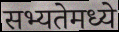
सभ्यतेमध्ये